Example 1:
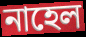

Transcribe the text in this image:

নাহেল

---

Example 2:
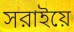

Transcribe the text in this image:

সরাইয়ে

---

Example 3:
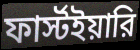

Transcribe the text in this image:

ফার্স্টইয়ারি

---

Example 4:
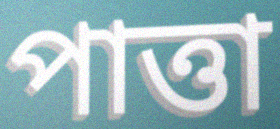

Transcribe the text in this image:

পাত্তা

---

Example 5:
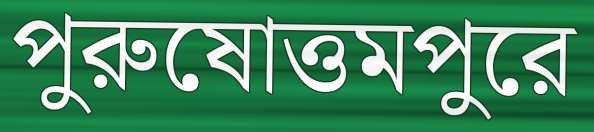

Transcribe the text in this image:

পুরুষোত্তমপুরে